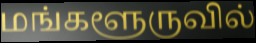
மங்களூருவில்